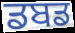
ਡਬਡ